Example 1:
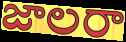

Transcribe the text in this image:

జాలరా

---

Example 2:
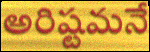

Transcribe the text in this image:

అరిష్టమనే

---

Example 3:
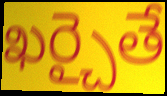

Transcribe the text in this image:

ఖర్చైతే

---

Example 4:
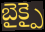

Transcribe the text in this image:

బైక్పై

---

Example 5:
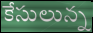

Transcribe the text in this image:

కేసులున్న